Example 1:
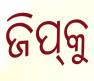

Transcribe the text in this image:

ଜିପ୍‍କୁ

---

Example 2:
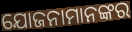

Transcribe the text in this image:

ଯୋଜନାମାନଙ୍କର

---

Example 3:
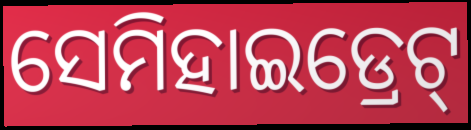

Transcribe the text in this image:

ସେମିହାଇଡ୍ରେଟ୍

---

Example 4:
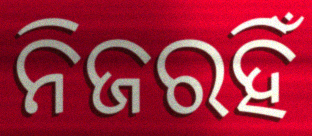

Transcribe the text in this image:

ନିଜରହିଁ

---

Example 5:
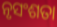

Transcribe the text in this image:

ନୃସଂଶତା